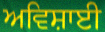
ਅਵਿਸ਼ਾਈ